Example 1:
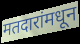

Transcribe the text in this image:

मतदारांमधून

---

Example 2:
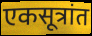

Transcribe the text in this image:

एकसूत्रांत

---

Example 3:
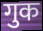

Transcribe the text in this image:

गुक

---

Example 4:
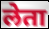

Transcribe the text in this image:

लेता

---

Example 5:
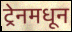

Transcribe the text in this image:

ट्रेनमधून